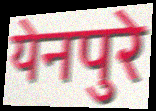
येनपुरे